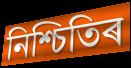
নিশ্চিতিৰ